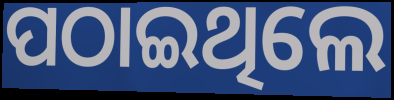
ପଠାଇଥିଲେ